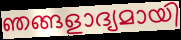
ഞങ്ങളാദ്യമായി